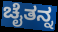
ಚೈತನ್ನ